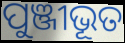
ପୁଞ୍ଜୀଭୂତ